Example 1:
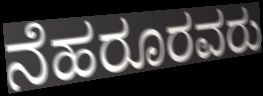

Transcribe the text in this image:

ನೆಹರೂರವರು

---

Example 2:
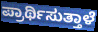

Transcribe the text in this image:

ಪ್ರಾರ್ಥಿಸುತ್ತಾಳೆ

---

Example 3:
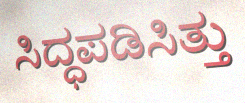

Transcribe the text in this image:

ಸಿದ್ಧಪಡಿಸಿತ್ತು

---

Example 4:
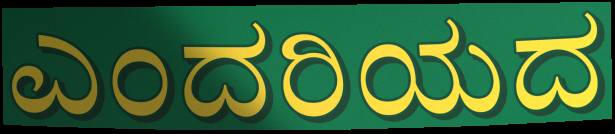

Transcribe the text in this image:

ಎಂದರಿಯದ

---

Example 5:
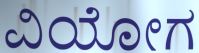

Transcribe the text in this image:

ವಿಯೋಗ